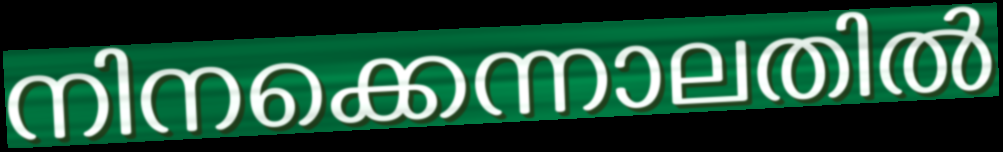
നിനക്കെന്നാലതിൽ